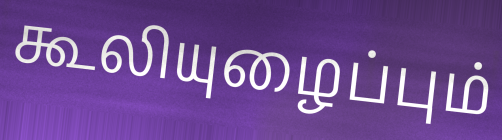
கூலியுழைப்பும்